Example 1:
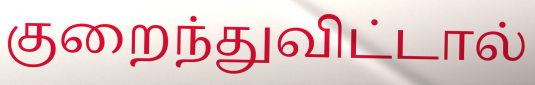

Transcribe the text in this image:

குறைந்துவிட்டால்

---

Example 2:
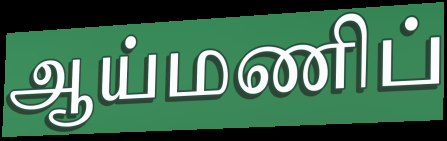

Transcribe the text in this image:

ஆய்மணிப்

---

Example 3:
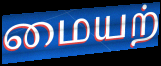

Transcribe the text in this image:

மையற்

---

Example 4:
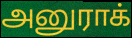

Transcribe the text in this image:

அனுராக்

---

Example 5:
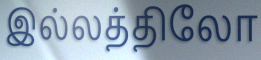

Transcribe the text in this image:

இல்லத்திலோ